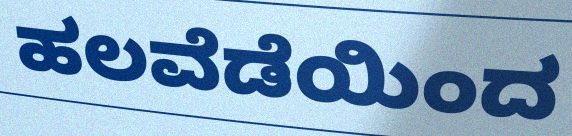
ಹಲವೆಡೆಯಿಂದ